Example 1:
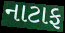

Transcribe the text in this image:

નાટાફ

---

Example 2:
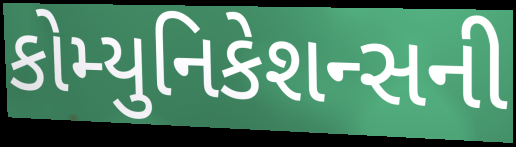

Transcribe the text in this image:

કોમ્યુનિકેશન્સની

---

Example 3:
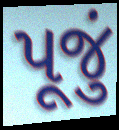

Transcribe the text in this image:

પૂજું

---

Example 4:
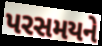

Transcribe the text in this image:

પરસમયને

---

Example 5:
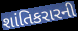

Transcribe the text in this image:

શાંતિકરારની